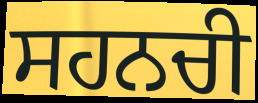
ਸਹਨਚੀ